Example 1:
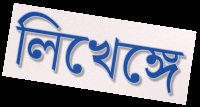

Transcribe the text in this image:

লিখেঙ্গে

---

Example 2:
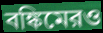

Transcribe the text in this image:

বঙ্কিমেরও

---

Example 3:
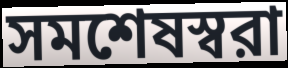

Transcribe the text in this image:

সমশেষস্বরা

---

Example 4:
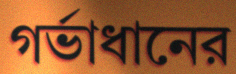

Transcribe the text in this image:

গর্ভাধানের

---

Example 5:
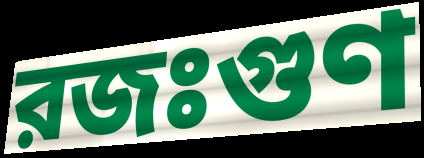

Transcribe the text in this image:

রজঃগুণ